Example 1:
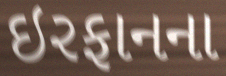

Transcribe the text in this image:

ઇરફાનના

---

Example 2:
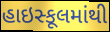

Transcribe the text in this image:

હાઇસ્કૂલમાંથી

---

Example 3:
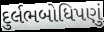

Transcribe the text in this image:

દુર્લભબોધિપણું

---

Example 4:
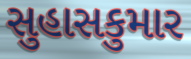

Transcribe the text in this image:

સુહાસકુમાર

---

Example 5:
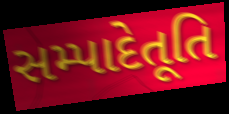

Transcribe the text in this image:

સમ્પાદેતૂતિ